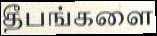
தீபங்களை